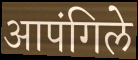
आपंगिले